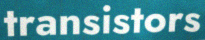
transistors